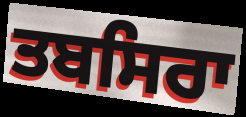
ਤਬਸਿਰਾ